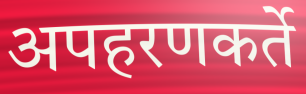
अपहरणकर्ते